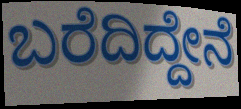
ಬರೆದಿದ್ದೇನೆ